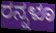
ರನ್ನಳೂ